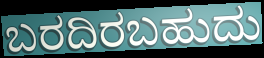
ಬರದಿರಬಹುದು